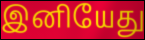
இனியேது